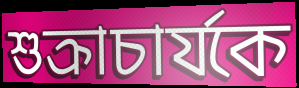
শুক্রাচার্যকে